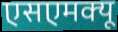
एसएमक्यू